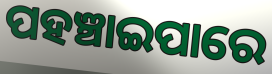
ପହଞ୍ଚାଇପାରେ